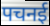
पचनई